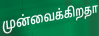
முன்வைக்கிறதா